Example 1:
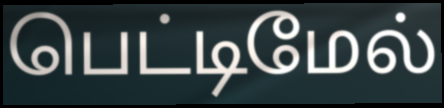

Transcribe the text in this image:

பெட்டிமேல்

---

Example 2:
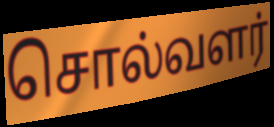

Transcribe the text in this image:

சொல்வளர்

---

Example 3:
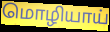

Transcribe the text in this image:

மொழியாய்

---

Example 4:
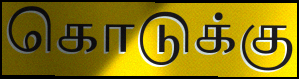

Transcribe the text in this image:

கொடுக்கு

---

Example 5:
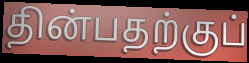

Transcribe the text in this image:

தின்பதற்குப்